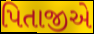
પિતાજીએ